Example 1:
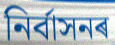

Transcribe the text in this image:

নিৰ্বাসনৰ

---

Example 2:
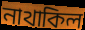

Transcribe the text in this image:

নাথাকিল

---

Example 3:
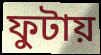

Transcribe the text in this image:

ফুটায়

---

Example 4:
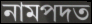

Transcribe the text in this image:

নামপদত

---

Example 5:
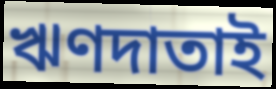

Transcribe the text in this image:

ঋণদাতাই